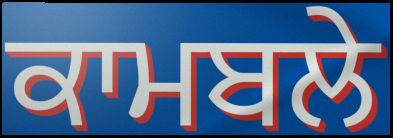
ਕਾਮਬਲੇ